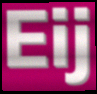
Eij